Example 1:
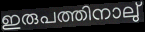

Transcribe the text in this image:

ഇരുപത്തിനാലു്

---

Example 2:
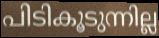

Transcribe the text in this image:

പിടികൂടുന്നില്ല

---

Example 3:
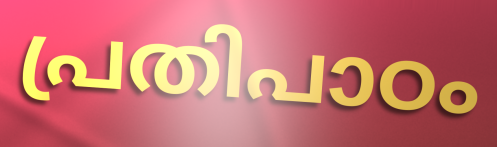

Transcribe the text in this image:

പ്രതിപാഠം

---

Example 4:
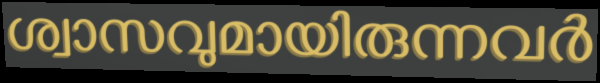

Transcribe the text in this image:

ശ്വാസവുമായിരുന്നവർ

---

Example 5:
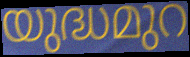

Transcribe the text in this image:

യുദ്ധമുറ